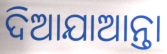
ଦିଆଯାଆନ୍ତା